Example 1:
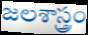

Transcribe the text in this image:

జలశాస్త్రం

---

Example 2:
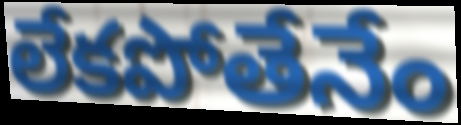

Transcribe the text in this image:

లేకపోతేనేం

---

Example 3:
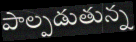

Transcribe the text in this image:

పాల్పడుతున్న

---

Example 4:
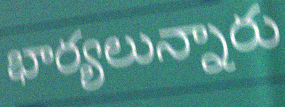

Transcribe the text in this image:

భార్యలున్నారు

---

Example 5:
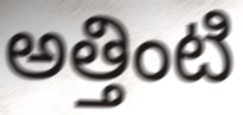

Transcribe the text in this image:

అత్తింటి